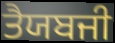
ਤੈਯਬਜੀ